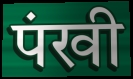
पंखी